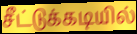
சீட்டுக்கடியில்